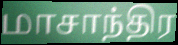
மாசாந்திர